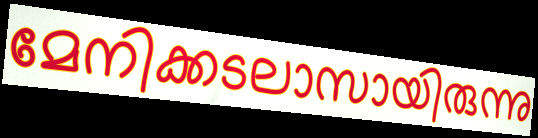
മേനിക്കടലാസായിരുന്നു